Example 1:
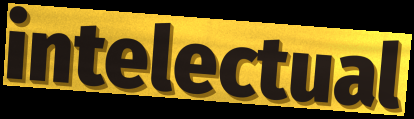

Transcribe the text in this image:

intelectual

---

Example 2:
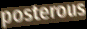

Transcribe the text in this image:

posterous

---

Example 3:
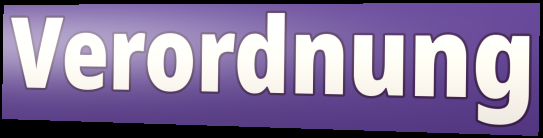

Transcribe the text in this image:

Verordnung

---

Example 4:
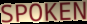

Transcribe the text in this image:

SPOKEN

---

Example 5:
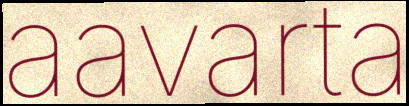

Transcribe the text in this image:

aavarta